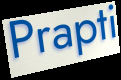
Prapti